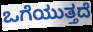
ಒಗೆಯುತ್ತದೆ